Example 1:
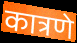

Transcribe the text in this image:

कात्रणे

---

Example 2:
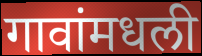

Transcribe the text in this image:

गावांमधली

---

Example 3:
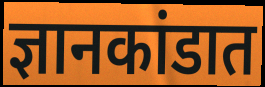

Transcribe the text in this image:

ज्ञानकांडात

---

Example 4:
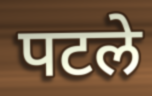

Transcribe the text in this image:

पटले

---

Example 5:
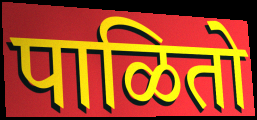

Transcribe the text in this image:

पाळितो